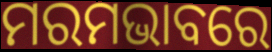
ମରମଭାବରେ